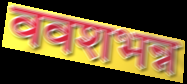
ववशभन्न